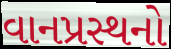
વાનપ્રસ્થનો